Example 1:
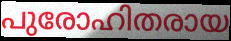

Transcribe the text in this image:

പുരോഹിതരായ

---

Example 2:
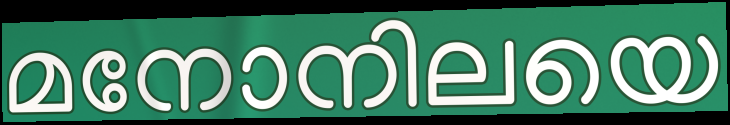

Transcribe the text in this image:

മനോനിലയെ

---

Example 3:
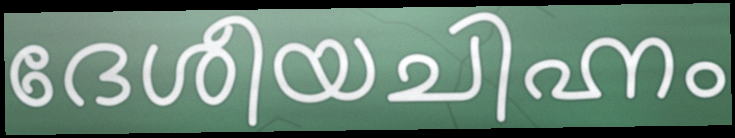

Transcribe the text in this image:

ദേശീയചിഹ്നം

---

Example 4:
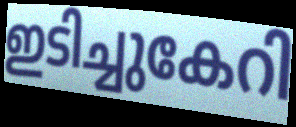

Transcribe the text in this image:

ഇടിച്ചുകേറി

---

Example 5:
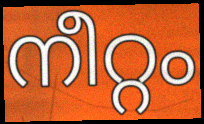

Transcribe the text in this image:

നീറ്റം